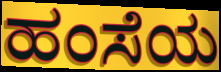
ಹಂಸೆಯ